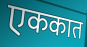
एककात